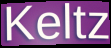
Keltz